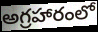
అగ్రహారంలో